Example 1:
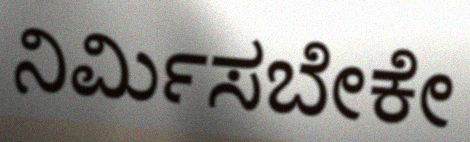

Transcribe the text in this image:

ನಿರ್ಮಿಸಬೇಕೇ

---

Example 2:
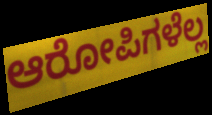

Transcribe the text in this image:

ಆರೋಪಿಗಳೆಲ್ಲ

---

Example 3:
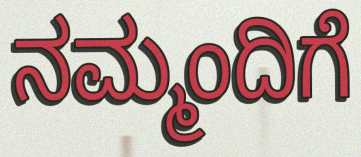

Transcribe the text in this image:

ನಮ್ಮಂದಿಗೆ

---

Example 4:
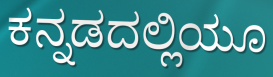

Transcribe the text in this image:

ಕನ್ನಡದಲ್ಲಿಯೂ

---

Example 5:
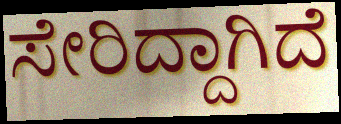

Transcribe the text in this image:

ಸೇರಿದ್ದಾಗಿದೆ